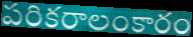
పరికరాలంకారం